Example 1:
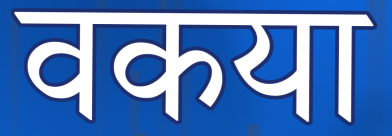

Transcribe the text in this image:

वकया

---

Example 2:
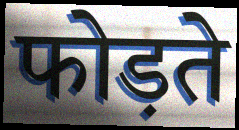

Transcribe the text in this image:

फोड़ते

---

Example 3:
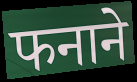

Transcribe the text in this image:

फनाने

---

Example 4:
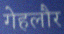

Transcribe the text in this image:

गेहलौर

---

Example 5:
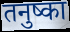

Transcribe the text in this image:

तनुष्का